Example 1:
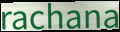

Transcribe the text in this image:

rachana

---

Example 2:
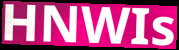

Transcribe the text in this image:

HNWIs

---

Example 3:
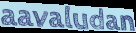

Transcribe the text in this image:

aavaludan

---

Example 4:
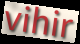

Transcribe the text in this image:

vihir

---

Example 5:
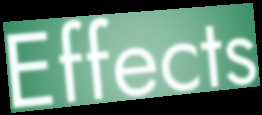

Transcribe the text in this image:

Effects